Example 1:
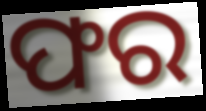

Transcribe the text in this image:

ଫର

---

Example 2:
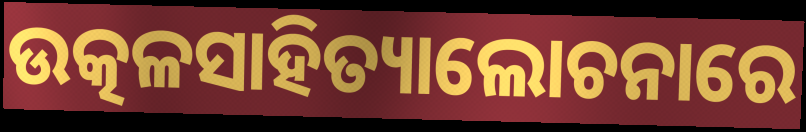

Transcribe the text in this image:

ଉତ୍କଳସାହିତ୍ୟାଲୋଚନାରେ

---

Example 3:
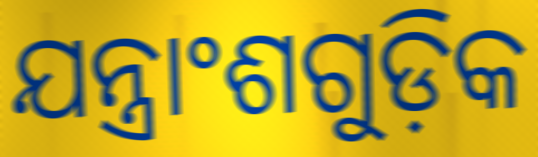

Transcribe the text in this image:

ଯନ୍ତ୍ରାଂଶଗୁଡ଼ିକ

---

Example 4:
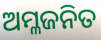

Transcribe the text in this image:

ଅମ୍ଳଜନିତ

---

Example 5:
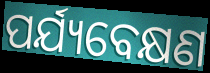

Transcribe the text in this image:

ପର୍ଯ୍ୟବେକ୍ଷଣ